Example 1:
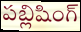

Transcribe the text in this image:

పబ్లిషింగ్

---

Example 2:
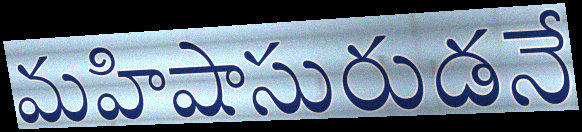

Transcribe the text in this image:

మహిషాసురుడనే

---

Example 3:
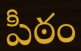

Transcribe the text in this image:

పీఠం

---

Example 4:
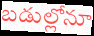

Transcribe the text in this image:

బడుల్లోనూ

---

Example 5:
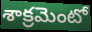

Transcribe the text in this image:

శాక్రమెంటో